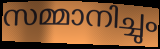
സമ്മാനിച്ചും